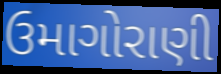
ઉમાગોરાણી